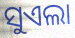
ସୁଏଲା